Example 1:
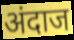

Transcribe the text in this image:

अंदाज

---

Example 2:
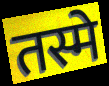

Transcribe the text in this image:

तस्मे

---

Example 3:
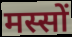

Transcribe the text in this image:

मस्सों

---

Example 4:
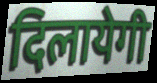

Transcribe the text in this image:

दिलायेगी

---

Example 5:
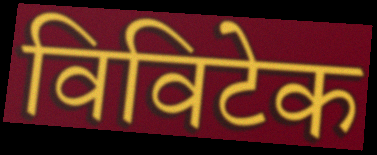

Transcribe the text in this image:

विविटेक